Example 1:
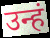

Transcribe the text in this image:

उन्हं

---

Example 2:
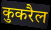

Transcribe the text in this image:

कुकरैल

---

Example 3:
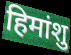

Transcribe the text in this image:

हिमांशु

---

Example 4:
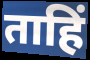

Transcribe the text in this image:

ताहिं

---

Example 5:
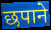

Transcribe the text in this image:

छपाने